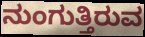
ನುಂಗುತ್ತಿರುವ